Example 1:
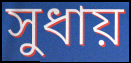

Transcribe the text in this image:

সুধায়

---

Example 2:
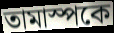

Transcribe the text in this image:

তামাস্পকে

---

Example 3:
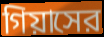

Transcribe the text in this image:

গিয়াসের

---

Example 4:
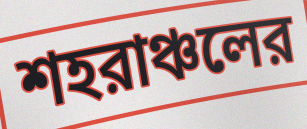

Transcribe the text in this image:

শহরাঞ্চলের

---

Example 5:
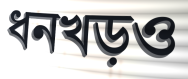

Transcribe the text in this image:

ধনখড়ও